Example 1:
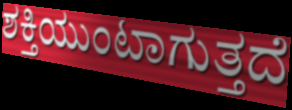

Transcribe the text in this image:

ಶಕ್ತಿಯುಂಟಾಗುತ್ತದೆ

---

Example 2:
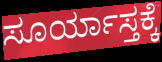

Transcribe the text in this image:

ಸೂರ್ಯಾಸ್ತಕ್ಕೆ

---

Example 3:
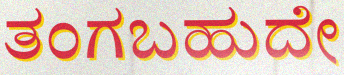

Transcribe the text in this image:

ತಂಗಬಹುದೇ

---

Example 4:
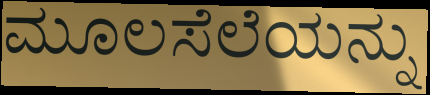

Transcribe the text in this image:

ಮೂಲಸೆಲೆಯನ್ನು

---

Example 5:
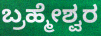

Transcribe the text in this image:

ಬ್ರಹ್ಮೇಶ್ವರ